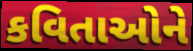
કવિતાઓને